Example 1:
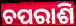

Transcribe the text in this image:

ଚପରାଶି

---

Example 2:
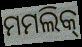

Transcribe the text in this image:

ମମଲିକ୍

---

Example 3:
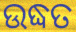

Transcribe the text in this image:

ଉଦ୍ଧତ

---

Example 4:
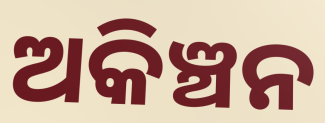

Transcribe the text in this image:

ଅକିଞ୍ଚନ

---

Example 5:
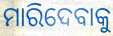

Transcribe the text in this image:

ମାରିଦେବାକୁ